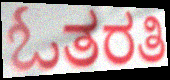
ಓತರತಿ